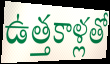
ఉత్తకాళ్లతో